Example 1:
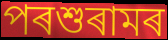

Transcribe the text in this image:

পৰশুৰামৰ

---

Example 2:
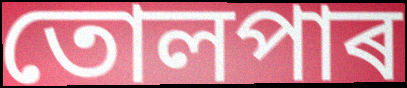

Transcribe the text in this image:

তোলপাৰ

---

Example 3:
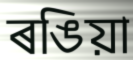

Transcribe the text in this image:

ৰঙিয়া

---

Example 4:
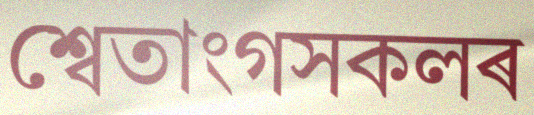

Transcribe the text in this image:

শ্বেতাংগসকলৰ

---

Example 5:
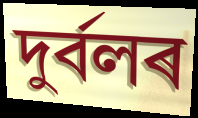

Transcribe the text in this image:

দুৰ্বলৰ